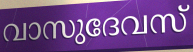
വാസുദേവസ്